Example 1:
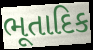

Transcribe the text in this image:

ભૂતાદિક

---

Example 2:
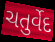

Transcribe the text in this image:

ચતુર્વેદ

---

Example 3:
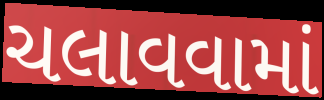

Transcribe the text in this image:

ચલાવવામાં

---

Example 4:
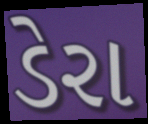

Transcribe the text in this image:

ડેરા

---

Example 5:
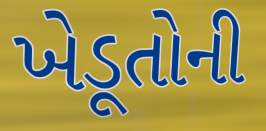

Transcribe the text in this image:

ખેડૂતોની